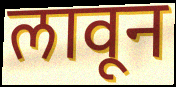
लावून